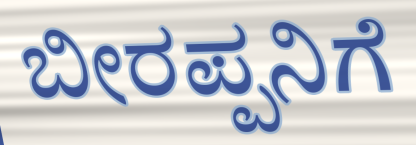
ಬೀರಪ್ಪನಿಗೆ